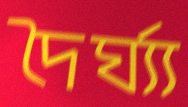
দৈৰ্ঘ্য্য